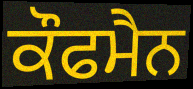
ਕੌਫਮੈਨ